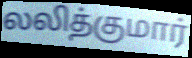
லலித்குமார்